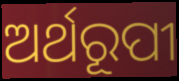
ଅର୍ଥରୂପୀ